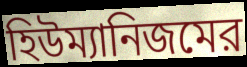
হিউম্যানিজমের